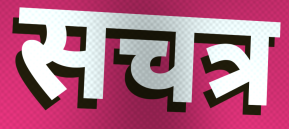
सचत्र